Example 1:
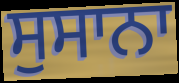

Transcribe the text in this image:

ਸੁਸਾਨਾ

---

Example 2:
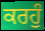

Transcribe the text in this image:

ਕਰਹੁੰ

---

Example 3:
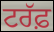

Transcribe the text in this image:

ਟਰੱਫ਼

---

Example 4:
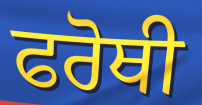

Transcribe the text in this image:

ਫਰੋਥੀ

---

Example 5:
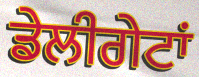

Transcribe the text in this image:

ਡੇਲੀਗੇਟਾਂ